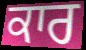
ਕਾਰ